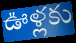
ఊళ్లకు